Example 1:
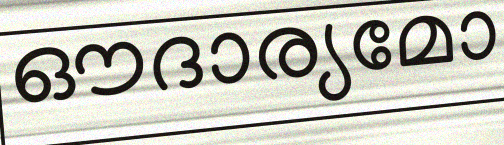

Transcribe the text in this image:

ഔദാര്യമോ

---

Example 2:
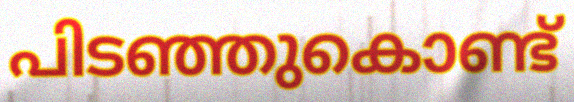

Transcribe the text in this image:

പിടഞ്ഞുകൊണ്ട്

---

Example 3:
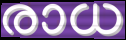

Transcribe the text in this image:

രാധ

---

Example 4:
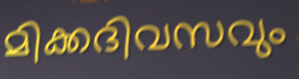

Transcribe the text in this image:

മിക്കദിവസവും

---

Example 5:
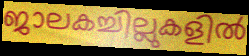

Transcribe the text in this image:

ജാലകച്ചില്ലുകളിൽ